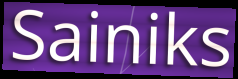
Sainiks